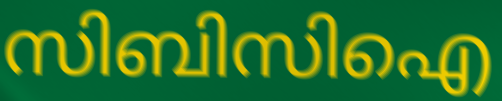
സിബിസിഐ